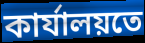
কাৰ্যালয়তে